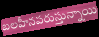
బలహీనపరుస్తున్నాయి